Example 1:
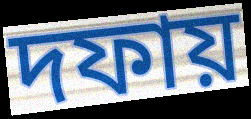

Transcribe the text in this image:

দফায়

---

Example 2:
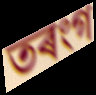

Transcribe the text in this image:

তৰংগ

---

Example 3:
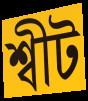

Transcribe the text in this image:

শ্বীট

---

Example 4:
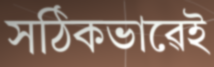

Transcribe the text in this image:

সঠিকভাৱেই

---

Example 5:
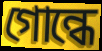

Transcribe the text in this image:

গোন্ধে